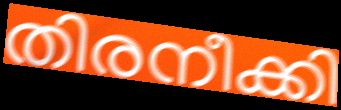
തിരനീക്കി